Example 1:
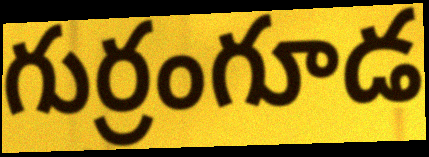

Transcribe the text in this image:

గుర్రంగూడ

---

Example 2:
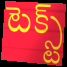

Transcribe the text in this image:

టెక్స్ట్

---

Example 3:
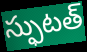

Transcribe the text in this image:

స్ఫుటత్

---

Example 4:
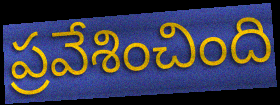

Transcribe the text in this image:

ప్రవేశించింది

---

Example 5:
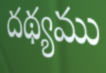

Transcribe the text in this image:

దథ్యము